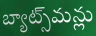
బ్యాట్స్‌మన్లు